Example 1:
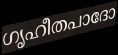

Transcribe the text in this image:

ഗൃഹീതപാദോ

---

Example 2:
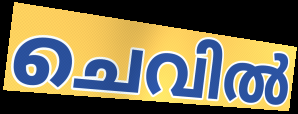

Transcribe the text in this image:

ചെവിൽ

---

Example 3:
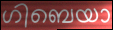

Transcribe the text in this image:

ഗിബെയാ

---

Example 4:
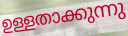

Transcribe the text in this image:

ഉള്ളതാക്കുന്നു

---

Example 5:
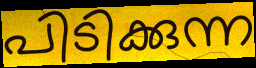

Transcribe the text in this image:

പിടിക്കുന്ന